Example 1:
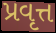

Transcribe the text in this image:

પ્રવૃત્ત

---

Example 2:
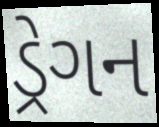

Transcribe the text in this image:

ડ્રેગન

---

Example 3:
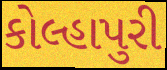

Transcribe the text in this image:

કોલ્હાપુરી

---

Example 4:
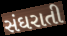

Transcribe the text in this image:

સંઘરાતી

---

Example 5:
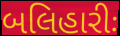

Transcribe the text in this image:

બલિહારીઃ